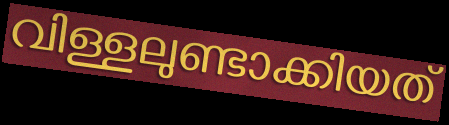
വിള്ളലുണ്ടാക്കിയത്